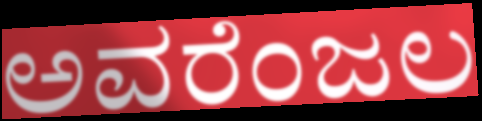
ಅವರೆಂಜಲ